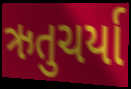
ઋતુચર્યા